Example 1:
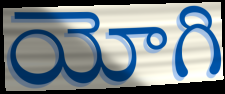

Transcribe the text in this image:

యోగి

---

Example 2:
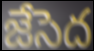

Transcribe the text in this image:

జేసెద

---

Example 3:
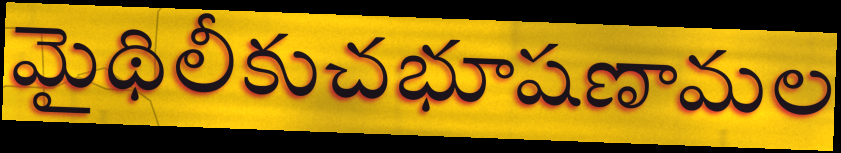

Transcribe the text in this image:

మైథిలీకుచభూషణామల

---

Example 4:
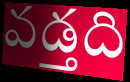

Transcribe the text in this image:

వడ్తది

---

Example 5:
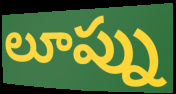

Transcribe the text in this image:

లూప్ను